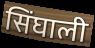
सिंघाली